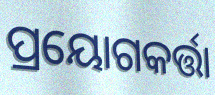
ପ୍ରୟୋଗକର୍ତ୍ତା